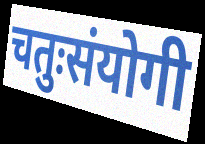
चतुःसंयोगी